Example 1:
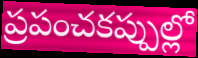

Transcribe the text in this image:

ప్రపంచకప్పుల్లో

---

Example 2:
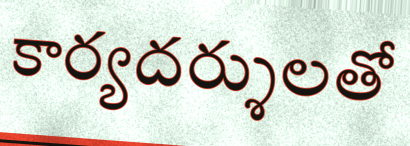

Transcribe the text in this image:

కార్యదర్శులతో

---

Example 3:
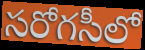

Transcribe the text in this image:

సరోగసీలో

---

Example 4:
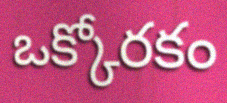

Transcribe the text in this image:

ఒక్కోరకం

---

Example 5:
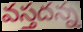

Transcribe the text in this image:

వస్తదన్న